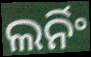
ଲର୍ନିଂ